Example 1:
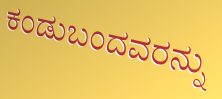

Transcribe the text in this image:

ಕಂಡುಬಂದವರನ್ನು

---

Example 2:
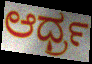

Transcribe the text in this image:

ಆರ್ಧ್ರ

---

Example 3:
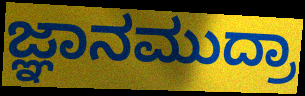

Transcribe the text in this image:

ಜ್ಞಾನಮುದ್ರಾ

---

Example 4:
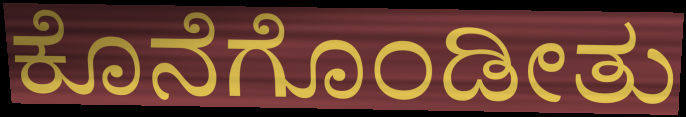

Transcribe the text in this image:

ಕೊನೆಗೊಂಡೀತು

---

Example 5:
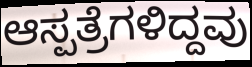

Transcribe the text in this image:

ಆಸ್ಪತ್ರೆಗಳಿದ್ದವು